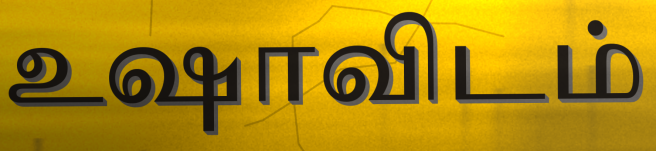
உஷாவிடம்